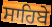
ਸਾਹਿਬੇ